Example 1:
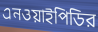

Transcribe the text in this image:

এনওয়াইপিডির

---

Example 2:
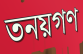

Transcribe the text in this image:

তনয়গণ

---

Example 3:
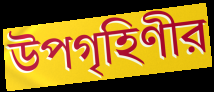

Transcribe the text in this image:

উপগৃহিণীর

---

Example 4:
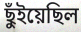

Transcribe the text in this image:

ছুঁইয়েছিল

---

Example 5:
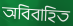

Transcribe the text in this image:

অবিবাহিত